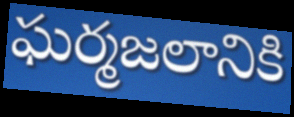
ఘర్మజలానికి